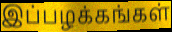
இப்பழக்கங்கள்